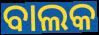
ବାଲକ